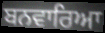
ਬਨਵਾਰਿਆ